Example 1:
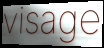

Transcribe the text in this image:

visage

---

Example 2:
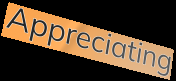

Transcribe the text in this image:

Appreciating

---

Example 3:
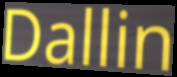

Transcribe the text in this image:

Dallin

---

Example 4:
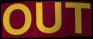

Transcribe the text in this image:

OUT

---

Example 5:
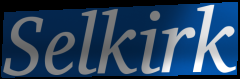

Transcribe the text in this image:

Selkirk